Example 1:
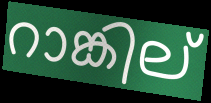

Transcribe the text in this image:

റാങ്കില്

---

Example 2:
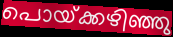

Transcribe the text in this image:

പൊയ്‌ക്കഴിഞ്ഞു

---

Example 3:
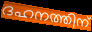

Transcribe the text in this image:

ദഹനത്തിന്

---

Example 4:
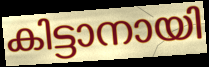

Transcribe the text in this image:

കിട്ടാനായി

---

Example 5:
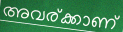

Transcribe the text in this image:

അവര്ക്കാണ്